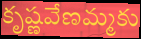
కృష్ణవేణమ్మకు